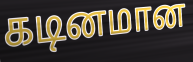
கடினமான